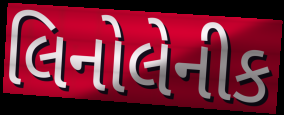
લિનોલેનીક